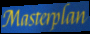
Masterplan